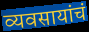
व्यवसायांचं